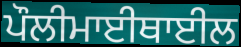
ਪੌਲੀਮਾਈਥਾਈਲ